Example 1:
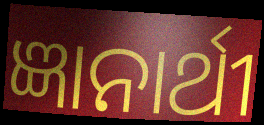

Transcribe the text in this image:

ଜ୍ଞାନାର୍ଥୀ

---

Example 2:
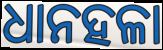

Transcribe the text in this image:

ଧାନହଳା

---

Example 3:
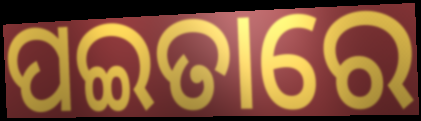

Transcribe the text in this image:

ପଇତାରେ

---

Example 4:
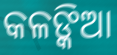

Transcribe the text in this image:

କଳଙ୍କିଆ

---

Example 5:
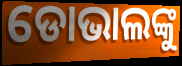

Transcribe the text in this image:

ଡୋଭାଲଙ୍କୁ